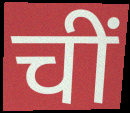
चीं